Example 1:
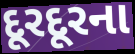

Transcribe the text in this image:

દૂરદૂરના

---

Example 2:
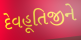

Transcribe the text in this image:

દેવહૂતિજીને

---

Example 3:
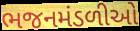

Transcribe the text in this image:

ભજનમંડળીઓ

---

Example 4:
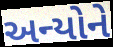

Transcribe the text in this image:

અન્યોને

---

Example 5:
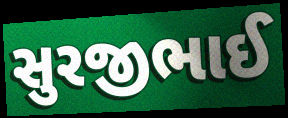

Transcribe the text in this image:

સુરજીભાઈ